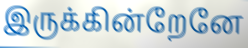
இருக்கின்றேனே